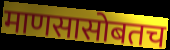
माणसासोबतच